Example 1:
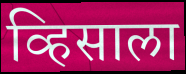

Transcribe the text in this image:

व्हिसाला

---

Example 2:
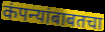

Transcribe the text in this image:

कंपन्यांबाबतचा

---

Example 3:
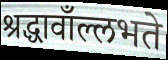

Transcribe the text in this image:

श्रद्धावाँल्लभते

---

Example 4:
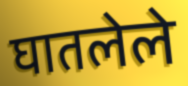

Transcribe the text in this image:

घातलेले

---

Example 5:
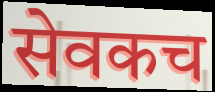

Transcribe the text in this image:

सेवकच